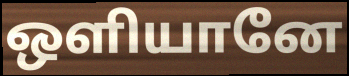
ஒளியானே